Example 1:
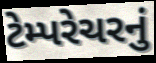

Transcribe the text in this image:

ટેમ્પરેચરનું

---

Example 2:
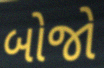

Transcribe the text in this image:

બોજો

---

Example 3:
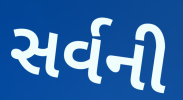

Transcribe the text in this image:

સર્વની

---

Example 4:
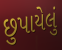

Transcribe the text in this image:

છુપાયેલું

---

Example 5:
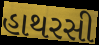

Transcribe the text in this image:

હાથરસી